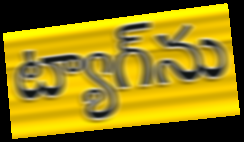
ట్యాగ్‌ను